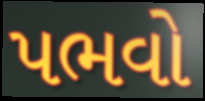
પભવો